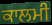
ਕਾਲਮੀ